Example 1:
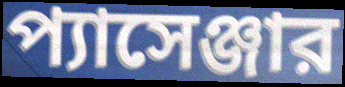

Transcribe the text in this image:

প্যাসেঞ্জার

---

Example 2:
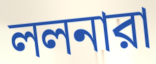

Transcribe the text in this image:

ললনারা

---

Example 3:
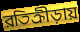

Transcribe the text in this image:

রতিক্রীড়ায়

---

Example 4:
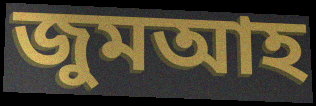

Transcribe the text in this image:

জুমআহ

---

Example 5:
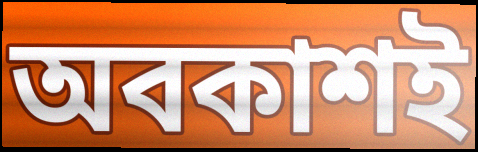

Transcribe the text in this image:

অবকাশই